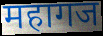
महागज